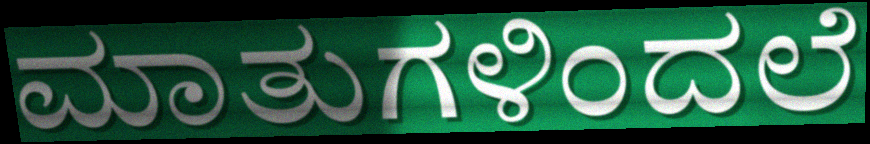
ಮಾತುಗಳಿಂದಲೆ